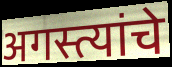
अगस्त्यांचे